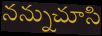
నన్నుచూసి